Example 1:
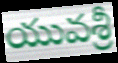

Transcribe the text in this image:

యువశ్రీ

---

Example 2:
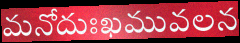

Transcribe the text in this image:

మనోదుఃఖమువలన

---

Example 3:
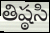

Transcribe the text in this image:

తిష్ఠసి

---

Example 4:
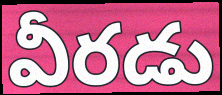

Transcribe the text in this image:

వీరడు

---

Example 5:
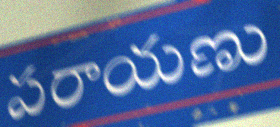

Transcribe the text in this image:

పరాయణు